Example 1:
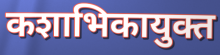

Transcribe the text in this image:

कशाभिकायुक्त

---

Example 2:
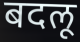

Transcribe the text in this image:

बदलू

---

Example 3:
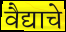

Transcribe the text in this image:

वैद्याचे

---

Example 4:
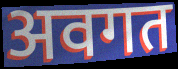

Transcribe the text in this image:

अवगत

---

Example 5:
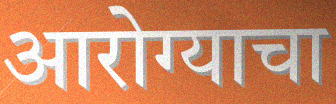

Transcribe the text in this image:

आरोग्याचा